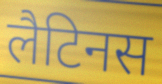
लैटिनस